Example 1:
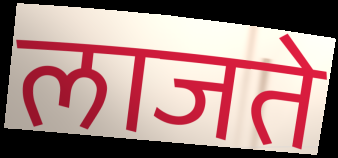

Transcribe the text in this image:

लाजते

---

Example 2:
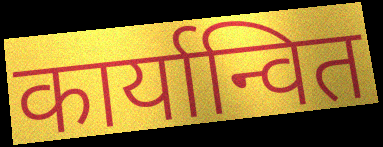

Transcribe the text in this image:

कार्यान्वित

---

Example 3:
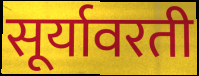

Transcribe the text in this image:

सूर्यावरती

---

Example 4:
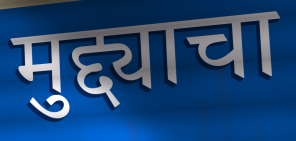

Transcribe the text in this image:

मुद्द्याचा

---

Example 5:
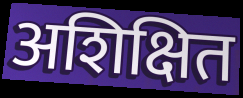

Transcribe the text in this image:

अशिक्षित